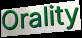
Orality